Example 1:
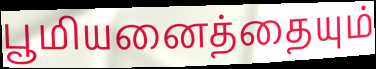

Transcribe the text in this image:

பூமியனைத்தையும்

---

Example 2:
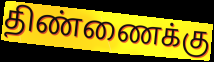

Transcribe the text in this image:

திண்ணைக்கு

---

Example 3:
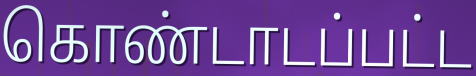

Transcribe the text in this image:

கொண்டாடப்பட்ட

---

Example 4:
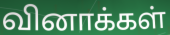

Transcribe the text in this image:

வினாக்கள்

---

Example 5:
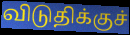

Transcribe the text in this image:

விடுதிக்குச்